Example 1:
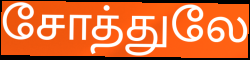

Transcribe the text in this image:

சோத்துலே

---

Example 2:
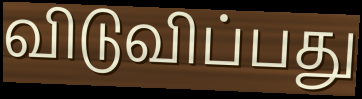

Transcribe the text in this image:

விடுவிப்பது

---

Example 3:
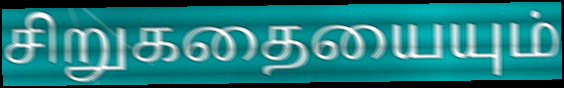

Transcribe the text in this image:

சிறுகதையையும்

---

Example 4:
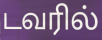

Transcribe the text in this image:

டவரில்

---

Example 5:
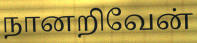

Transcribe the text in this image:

நானறிவேன்